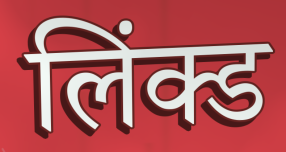
लिंक्ड